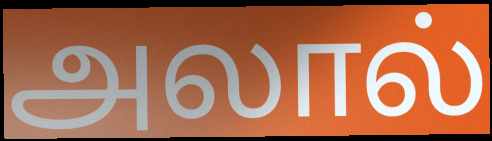
அலால்